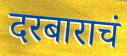
दरबाराचं